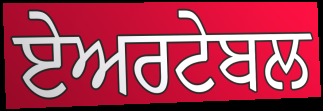
ਏਅਰਟੇਬਲ